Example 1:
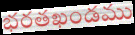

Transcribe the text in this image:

భరతఖండము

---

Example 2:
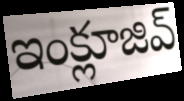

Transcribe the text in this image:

ఇంక్లూజివ్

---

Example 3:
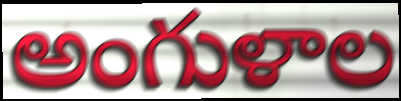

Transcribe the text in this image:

అంగుళాల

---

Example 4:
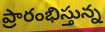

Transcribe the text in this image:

ప్రారంభిస్తున్న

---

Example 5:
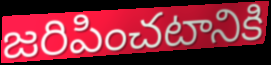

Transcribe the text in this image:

జరిపించటానికి